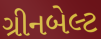
ગ્રીનબેલ્ટ